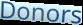
Donors